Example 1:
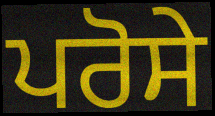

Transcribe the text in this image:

ਪਰੋਸੇ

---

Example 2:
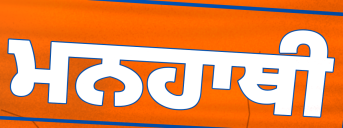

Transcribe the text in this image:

ਮਨਹਾਥੀ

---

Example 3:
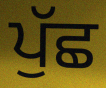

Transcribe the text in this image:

ਪੁੱਛ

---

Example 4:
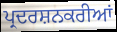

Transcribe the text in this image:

ਪ੍ਰਦਰਸ਼ਨਕਰੀਆਂ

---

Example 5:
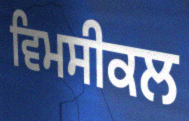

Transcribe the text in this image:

ਵਿਮਸੀਕਲ